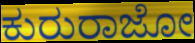
ಕುರುರಾಜೋ